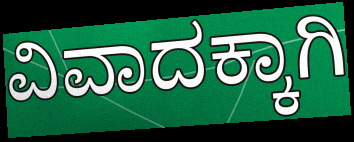
ವಿವಾದಕ್ಕಾಗಿ